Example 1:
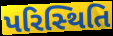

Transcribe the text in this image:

પરિસ્‍થિતિ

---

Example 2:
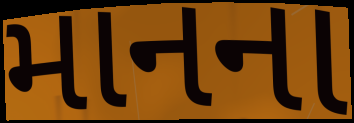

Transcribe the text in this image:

માનના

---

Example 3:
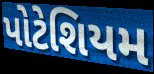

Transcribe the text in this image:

પોટેશિયમ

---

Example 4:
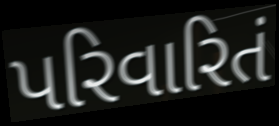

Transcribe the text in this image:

પરિવારિતં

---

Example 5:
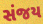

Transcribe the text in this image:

સંજય